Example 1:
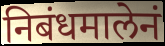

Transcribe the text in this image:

निबंधमालेनं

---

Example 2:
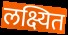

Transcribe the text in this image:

लक्ष्यित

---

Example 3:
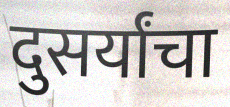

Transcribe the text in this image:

दुसर्यांचा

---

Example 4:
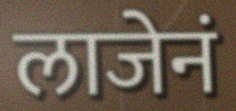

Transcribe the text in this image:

लाजेनं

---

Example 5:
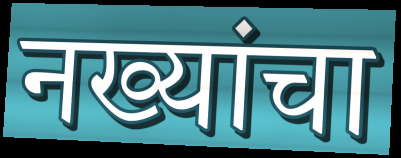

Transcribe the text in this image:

नख्यांचा